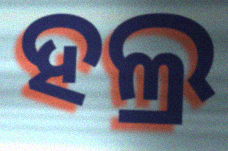
ହଲ୍ର